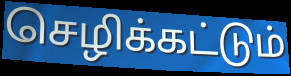
செழிக்கட்டும்